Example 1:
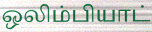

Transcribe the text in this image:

ஒலிம்பியாட்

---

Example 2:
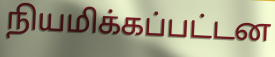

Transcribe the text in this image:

நியமிக்கப்பட்டன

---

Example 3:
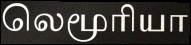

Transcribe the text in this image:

லெமூரியா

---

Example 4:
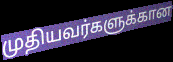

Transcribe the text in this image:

முதியவர்களுக்கான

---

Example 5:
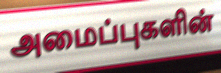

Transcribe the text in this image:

அமைப்புகளின்